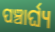
ପଞ୍ଚାର୍ଘ୍ୟ